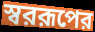
স্বররূপের